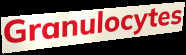
Granulocytes